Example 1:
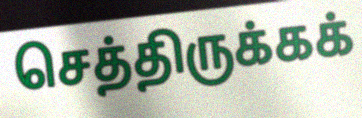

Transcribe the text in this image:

செத்திருக்கக்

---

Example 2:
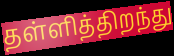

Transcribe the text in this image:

தள்ளித்திறந்து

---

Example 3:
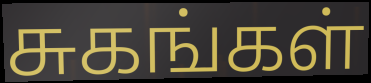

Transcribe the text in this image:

சுகங்கள்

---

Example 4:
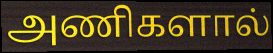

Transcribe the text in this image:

அணிகளால்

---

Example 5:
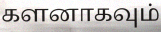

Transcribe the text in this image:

களனாகவும்